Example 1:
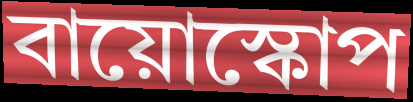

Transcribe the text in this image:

বায়োস্কোপ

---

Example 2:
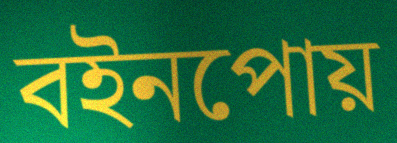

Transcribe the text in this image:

বইনপোয়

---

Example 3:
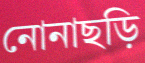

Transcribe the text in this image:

নোনাছড়ি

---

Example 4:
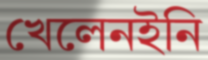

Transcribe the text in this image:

খেলেনইনি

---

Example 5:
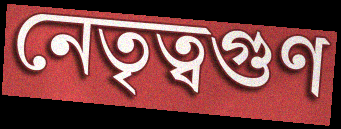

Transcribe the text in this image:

নেতৃত্বগুণ